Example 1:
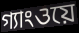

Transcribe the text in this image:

গ্যাংওয়ে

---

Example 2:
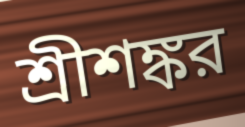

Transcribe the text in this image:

শ্রীশঙ্কর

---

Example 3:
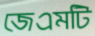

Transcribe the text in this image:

জেএমটি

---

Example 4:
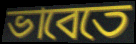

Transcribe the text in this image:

ভাবেতে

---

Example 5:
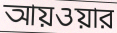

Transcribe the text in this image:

আয়ওয়ার